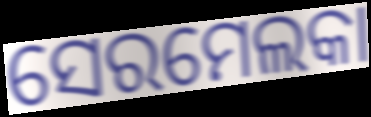
ସେରମେଲକା